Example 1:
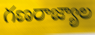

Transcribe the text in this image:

గణరాజ్యాల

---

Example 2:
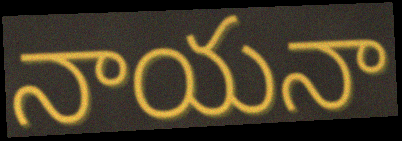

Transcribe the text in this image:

నాయనా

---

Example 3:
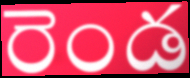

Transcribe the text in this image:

రెండ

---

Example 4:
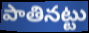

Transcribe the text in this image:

పాతినట్టు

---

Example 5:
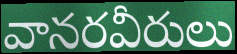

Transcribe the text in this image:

వానరవీరులు